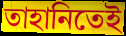
তাহানিতেই